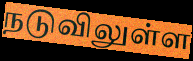
நடுவிலுள்ள